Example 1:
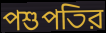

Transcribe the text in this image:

পশুপতির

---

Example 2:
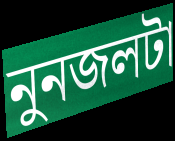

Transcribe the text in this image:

নুনজলটা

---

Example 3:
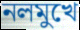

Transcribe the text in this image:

নলমুখে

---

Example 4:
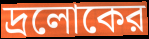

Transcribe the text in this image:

দ্রলোকের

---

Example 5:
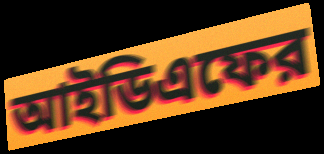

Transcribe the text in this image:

আইডিএফের